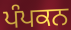
ਪੰਪਕਨ